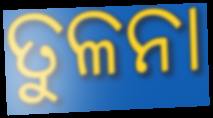
ତୁଳନା